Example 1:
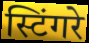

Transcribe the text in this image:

स्टिंगरे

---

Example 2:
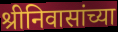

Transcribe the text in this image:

श्रीनिवासांच्या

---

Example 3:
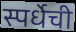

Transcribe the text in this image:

स्पर्धेची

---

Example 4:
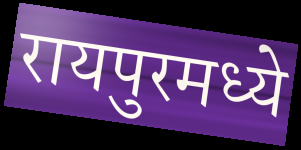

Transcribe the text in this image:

रायपुरमध्ये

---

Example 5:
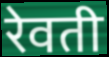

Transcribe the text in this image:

रेवती